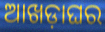
ଆଖଡ଼ାଘର